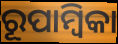
ରୂପାମ୍ୱିକା